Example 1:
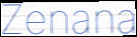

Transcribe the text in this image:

Zenana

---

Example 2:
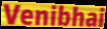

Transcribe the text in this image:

Venibhai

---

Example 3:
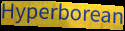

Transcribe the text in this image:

Hyperborean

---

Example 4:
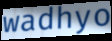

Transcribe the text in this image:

wadhyo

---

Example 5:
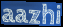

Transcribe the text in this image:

aazhi